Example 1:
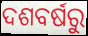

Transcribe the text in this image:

ଦଶବର୍ଷରୁ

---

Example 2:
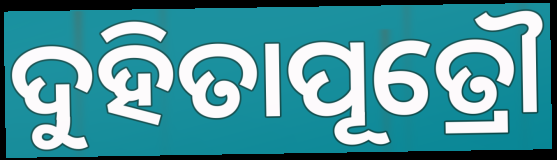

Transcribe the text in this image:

ଦୁହିତାପୂତ୍ରୌ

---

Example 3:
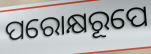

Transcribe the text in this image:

ପରୋକ୍ଷରୂପେ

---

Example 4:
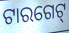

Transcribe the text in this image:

ଟାରଗେଟ୍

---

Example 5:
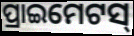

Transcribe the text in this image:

ପ୍ରାଇମେଟସ୍